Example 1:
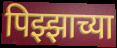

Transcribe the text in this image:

पिझ्झाच्या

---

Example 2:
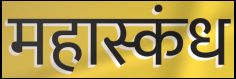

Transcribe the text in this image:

महास्कंध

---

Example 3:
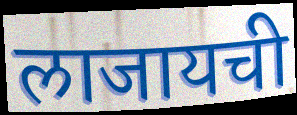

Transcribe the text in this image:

लाजायची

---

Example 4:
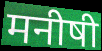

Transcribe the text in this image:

मनीषी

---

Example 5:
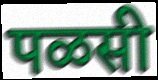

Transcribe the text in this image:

पळसी